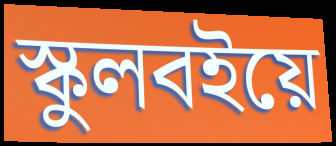
স্কুলবইয়ে